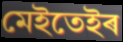
মেইতেইৰ